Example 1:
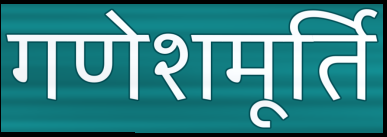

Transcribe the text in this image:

गणेशमूर्ति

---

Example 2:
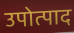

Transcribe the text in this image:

उपोत्पाद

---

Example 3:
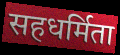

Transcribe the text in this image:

सहधर्मिता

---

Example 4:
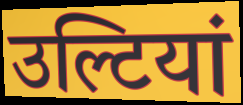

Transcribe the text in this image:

उल्टियां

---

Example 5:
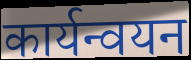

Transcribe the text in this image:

कार्यन्वयन